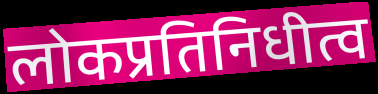
लोकप्रतिनिधीत्व